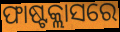
ଫାଷ୍ଟକ୍ଲାସରେ